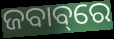
ଜବାବ୍‌ରେ